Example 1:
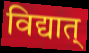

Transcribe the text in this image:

विद्यात्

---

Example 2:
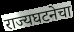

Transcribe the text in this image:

राज्यघटनेचा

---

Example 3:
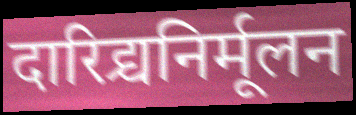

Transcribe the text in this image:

दारिद्र्यनिर्मूलन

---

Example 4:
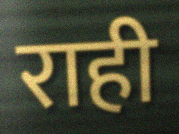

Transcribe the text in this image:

राही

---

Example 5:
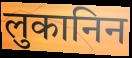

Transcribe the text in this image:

लुकानिन